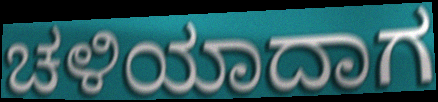
ಚಳಿಯಾದಾಗ